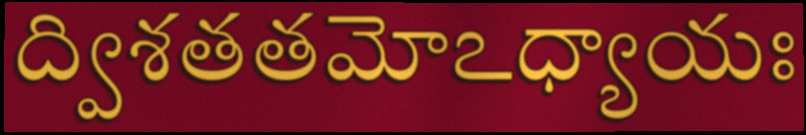
ద్విశతతమోఽధ్యాయః